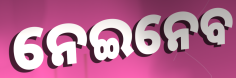
ନେଇନେବ